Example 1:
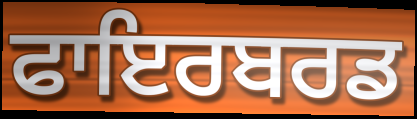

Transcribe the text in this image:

ਫਾਇਰਬਰਡ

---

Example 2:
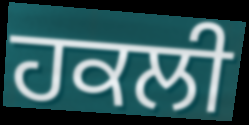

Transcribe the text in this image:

ਹਕਲੀ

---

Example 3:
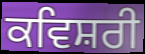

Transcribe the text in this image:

ਕਵਿਸ਼ਰੀ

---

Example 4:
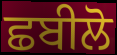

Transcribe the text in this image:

ਛਬੀਲੋ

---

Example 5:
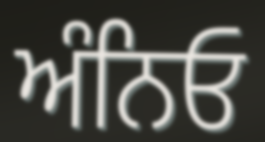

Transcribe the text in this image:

ਅੰਨਿਓ